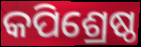
କପିଶ୍ରେଷ୍ଠ